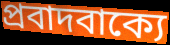
প্রবাদবাক্যে